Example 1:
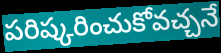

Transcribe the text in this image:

పరిష్కరించుకోవచ్చనే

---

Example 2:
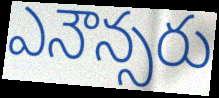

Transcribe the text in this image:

ఎనౌన్సరు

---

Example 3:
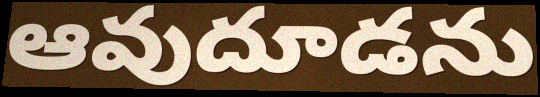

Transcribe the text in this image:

ఆవుదూడను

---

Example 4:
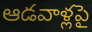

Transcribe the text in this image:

ఆడవాళ్లపై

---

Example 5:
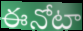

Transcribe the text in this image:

ఈనోటా